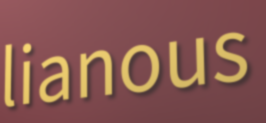
lianous